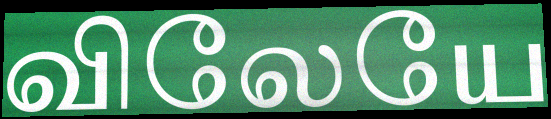
விலேயே